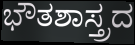
ಭೌತಶಾಸ್ತ್ರದ